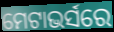
ମେଟାଭର୍ସରେ